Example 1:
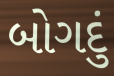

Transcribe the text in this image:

બોગદું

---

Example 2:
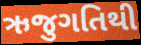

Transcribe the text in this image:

ઋજુગતિથી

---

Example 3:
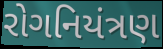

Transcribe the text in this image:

રોગનિયંત્રણ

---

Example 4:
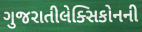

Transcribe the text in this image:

ગુજરાતીલેક્સિકોનની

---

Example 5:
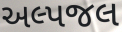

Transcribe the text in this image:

અલ્પજલ